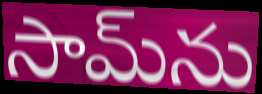
సామ్‌ను